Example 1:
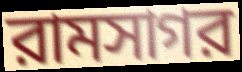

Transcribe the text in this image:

রামসাগর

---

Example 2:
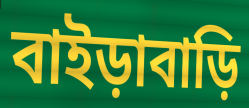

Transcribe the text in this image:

বাইড়াবাড়ি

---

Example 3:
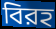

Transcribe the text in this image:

বিরহ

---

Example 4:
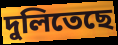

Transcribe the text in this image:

দুলিতেছে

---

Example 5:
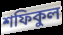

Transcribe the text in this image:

শফিকুল